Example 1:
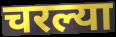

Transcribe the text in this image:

चरल्या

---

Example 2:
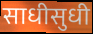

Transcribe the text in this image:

साधीसुधी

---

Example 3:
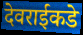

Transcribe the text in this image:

देवराईकडे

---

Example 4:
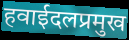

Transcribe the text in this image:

हवाईदलप्रमुख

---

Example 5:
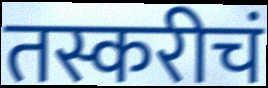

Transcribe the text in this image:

तस्करीचं